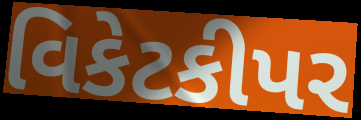
વિકેટકીપર